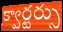
క్వార్టర్సు